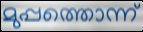
മുപ്പത്തൊന്ന്